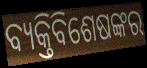
ବ୍ୟକ୍ତିବିଶେଷଙ୍କର